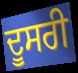
ਦੂਸਰੀ